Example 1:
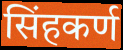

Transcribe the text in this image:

सिंहकर्ण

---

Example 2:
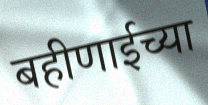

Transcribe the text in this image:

बहीणाईच्या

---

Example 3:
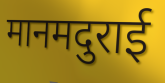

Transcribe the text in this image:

मानमदुराई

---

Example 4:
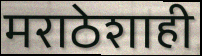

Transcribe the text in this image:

मराठेशाही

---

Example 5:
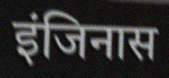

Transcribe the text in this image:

इंजिनास